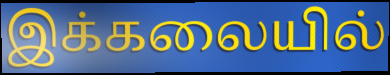
இக்கலையில்